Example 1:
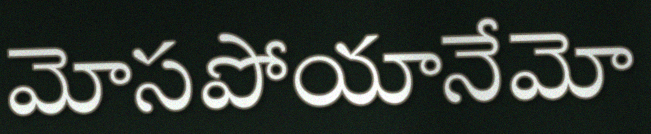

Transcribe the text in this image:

మోసపోయానేమో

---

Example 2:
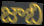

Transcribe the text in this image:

జాబి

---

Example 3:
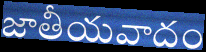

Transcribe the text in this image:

జాతీయవాదం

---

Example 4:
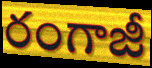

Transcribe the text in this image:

రంగాజీ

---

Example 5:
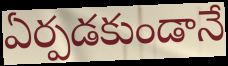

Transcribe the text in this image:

ఏర్పడకుండానే